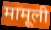
मामूली